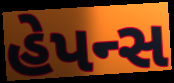
હેપન્સ